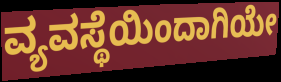
ವ್ಯವಸ್ಥೆಯಿಂದಾಗಿಯೇ